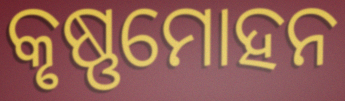
କୃଷ୍ଣମୋହନ